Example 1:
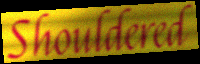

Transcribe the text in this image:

Shouldered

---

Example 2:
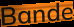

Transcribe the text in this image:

Bande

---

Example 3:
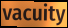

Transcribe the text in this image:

vacuity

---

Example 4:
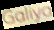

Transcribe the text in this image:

Galiya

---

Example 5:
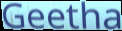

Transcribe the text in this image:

Geetha